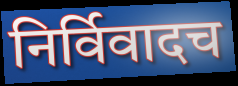
निर्विवादच